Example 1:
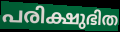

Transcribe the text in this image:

പരിക്ഷുഭിത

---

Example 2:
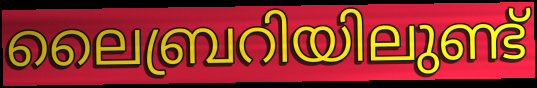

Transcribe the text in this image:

ലൈബ്രറിയിലുണ്ട്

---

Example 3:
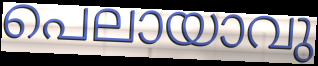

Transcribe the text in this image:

പെലായാവു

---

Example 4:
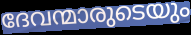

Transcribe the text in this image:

ദേവന്മാരുടെയും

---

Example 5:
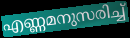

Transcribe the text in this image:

എണ്ണമനുസരിച്ച്